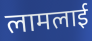
लामलाई